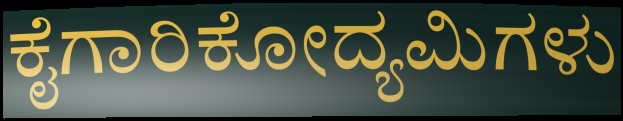
ಕೈಗಾರಿಕೋದ್ಯಮಿಗಳು